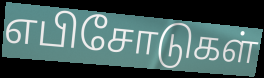
எபிசோடுகள்